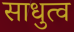
साधुत्व